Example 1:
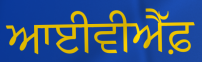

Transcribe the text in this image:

ਆਈਵੀਐੱਫ਼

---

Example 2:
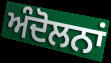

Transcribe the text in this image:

ਅੰਦੋਲਨਾਂ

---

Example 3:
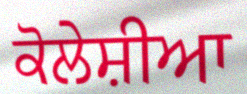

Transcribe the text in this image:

ਕੋਲੇਸ਼ੀਆ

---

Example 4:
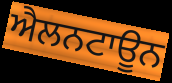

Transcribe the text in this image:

ਐਲਨਟਾਊਨ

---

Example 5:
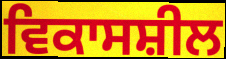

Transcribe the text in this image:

ਵਿਕਾਸਸ਼ੀਲ